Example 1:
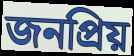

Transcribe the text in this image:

জনপ্রিয়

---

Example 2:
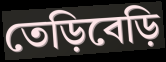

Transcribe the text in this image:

তেড়িবেড়ি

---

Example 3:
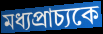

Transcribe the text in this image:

মধ্যপ্রাচ্যকে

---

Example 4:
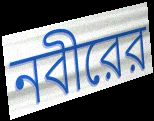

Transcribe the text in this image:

নবীরের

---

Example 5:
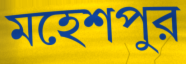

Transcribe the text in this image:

মহেশপুর